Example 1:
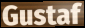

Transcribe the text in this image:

Gustaf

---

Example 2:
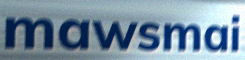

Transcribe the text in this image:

mawsmai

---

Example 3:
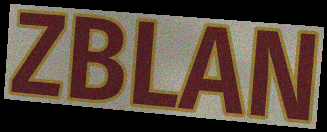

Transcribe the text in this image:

ZBLAN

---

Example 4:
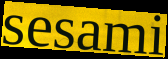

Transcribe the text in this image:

sesami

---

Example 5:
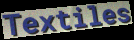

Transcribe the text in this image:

Textiles